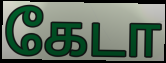
கேடா